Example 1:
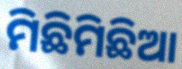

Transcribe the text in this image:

ମିଛିମିଛିଆ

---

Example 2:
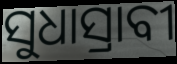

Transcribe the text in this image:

ସୁଧାସ୍ରାବୀ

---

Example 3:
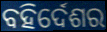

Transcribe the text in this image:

ବହିର୍ଦେଶର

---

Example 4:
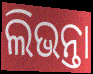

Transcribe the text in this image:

ଲିଭନ୍ତା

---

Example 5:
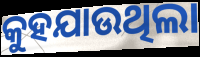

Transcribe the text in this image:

କୁହଯାଉଥିଲା